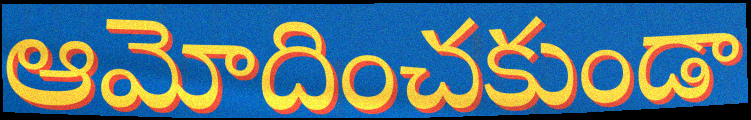
ఆమోదించకుండా